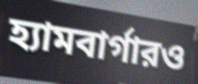
হ্যামবার্গারও